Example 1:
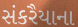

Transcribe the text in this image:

સંકરૈયાના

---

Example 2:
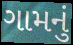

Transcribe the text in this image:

ગામનું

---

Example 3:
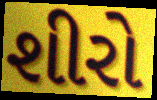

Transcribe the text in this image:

શીરો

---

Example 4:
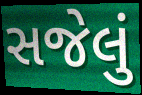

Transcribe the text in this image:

સજેલું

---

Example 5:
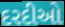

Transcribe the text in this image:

દરદીઓ